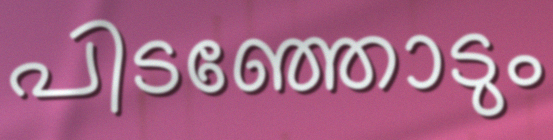
പിടഞ്ഞോടും